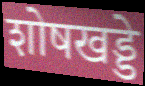
शोषखड्डे